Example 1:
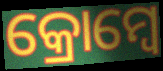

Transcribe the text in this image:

କ୍ରୋମ୍ବେ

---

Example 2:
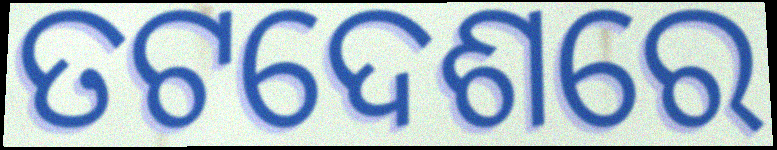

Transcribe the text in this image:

ତଟଦେଶରେ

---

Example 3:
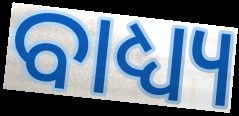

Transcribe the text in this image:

ବାଧ୍ୟ୍ୟ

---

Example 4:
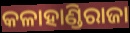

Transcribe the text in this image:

କଳାହାଣ୍ଡିରାଜା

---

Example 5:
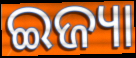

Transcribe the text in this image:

ଇଜ୍ୟା